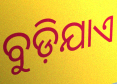
ବୁଡ଼ିଯାଏ